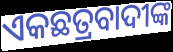
ଏକଛତ୍ରବାଦୀଙ୍କ